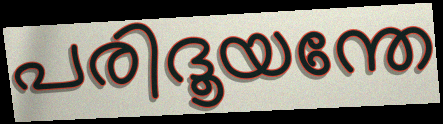
പരിദൂയന്തേ